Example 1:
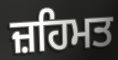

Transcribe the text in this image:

ਜ਼ਹਿਮਤ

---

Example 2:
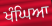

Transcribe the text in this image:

ਖੰਘਿਆ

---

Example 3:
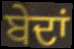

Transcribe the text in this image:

ਬੇਦਾਂ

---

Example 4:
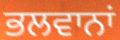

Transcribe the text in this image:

ਭਲਵਾਨਾਂ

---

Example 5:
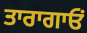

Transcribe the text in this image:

ਤਾਰਾਗਾਓਂ